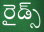
రైడ్స్